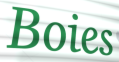
Boies